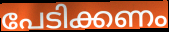
പേടിക്കണം